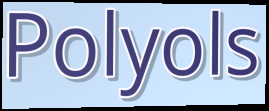
Polyols